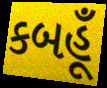
કબહૂઁ